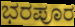
ಭರಪೂರ